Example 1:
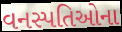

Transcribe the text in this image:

વનસ્પતિઓના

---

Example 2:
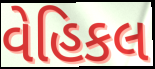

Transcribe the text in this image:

વેહિકલ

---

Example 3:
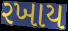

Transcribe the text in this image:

રખાય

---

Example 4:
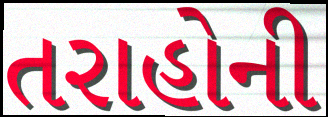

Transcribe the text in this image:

તરાહોની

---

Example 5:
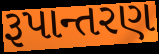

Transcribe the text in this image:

રૂપાન્તરણ